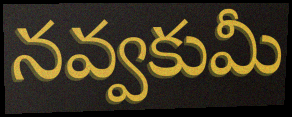
నవ్వకుమీ